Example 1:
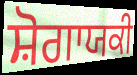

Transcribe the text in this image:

ਸ਼ੋਗਾਯਕੀ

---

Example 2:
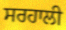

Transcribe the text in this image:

ਸਰਹਾਲੀ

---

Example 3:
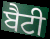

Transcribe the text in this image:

ਬੈਟੀ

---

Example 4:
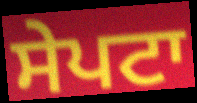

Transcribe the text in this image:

ਸੇਪਟਾ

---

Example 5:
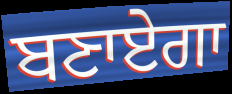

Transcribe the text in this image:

ਬਣਾਏਗਾ